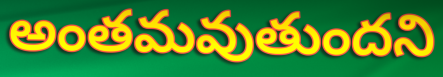
అంతమవుతుందని